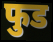
फुड